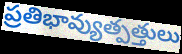
ప్రతిభావ్యుత్పత్తులు